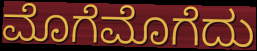
ಮೊಗೆಮೊಗೆದು